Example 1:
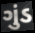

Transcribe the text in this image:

ગુંડ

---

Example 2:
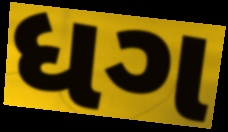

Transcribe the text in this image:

ધગ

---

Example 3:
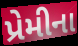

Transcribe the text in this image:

પ્રેમીના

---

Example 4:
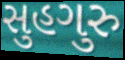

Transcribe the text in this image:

સુહગુરુ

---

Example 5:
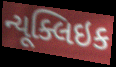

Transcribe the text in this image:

ન્યૂક્લિઇક